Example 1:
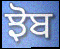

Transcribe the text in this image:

ਝੋਬ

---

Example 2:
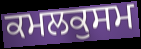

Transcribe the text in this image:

ਕਮਲਕੁਸਮ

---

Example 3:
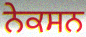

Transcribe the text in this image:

ਨੇਕਸਨ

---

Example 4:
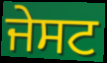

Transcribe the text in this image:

ਜੇਸਟ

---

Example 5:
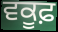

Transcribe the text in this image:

ਵਕੂਫ਼